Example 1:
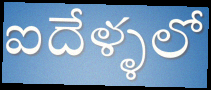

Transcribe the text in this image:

ఐదేళ్ళలో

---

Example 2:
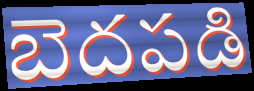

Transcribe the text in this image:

బెదపడి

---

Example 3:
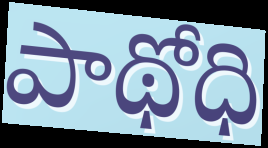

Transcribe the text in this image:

పాథోధి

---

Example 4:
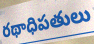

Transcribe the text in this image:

రథాధిపతులు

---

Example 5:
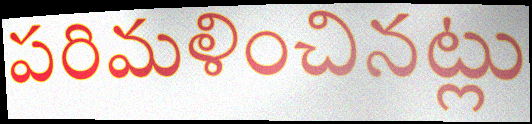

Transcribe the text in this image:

పరిమళించినట్లు